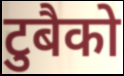
टुबैको